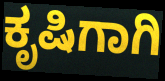
ಕೃಷಿಗಾಗಿ